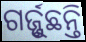
ଗର୍ଜ୍ଜୁଛନ୍ତି